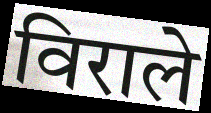
विराले